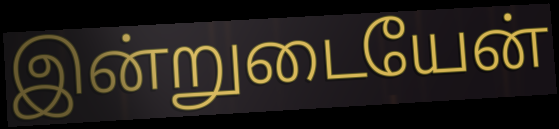
இன்றுடையேன்